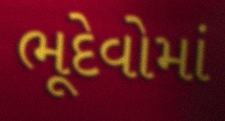
ભૂદેવોમાં